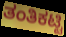
ತಂತಿಕಟ್ಟಿ